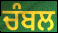
ਚੰਬਲ